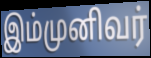
இம்முனிவர்